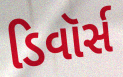
ડિવૉર્સ